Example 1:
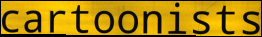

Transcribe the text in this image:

cartoonists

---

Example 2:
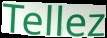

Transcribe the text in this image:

Tellez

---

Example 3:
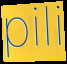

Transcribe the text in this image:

pili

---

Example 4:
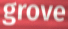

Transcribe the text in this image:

grove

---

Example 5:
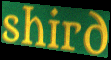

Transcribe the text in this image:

shird